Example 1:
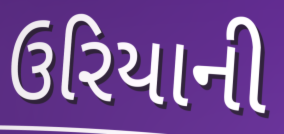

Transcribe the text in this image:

ઉરિયાની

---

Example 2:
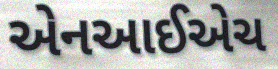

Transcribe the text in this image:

એનઆઈએચ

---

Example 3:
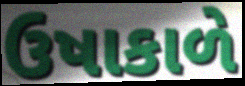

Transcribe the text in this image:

ઉષાકાળે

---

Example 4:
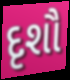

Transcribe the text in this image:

દૃશૌ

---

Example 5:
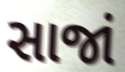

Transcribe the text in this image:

સાજાં